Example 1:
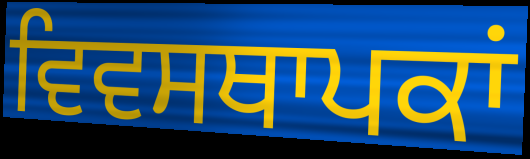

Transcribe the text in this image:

ਵਿਵਸਥਾਪਕਾਂ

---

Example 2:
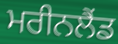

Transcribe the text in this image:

ਮਰੀਨਲੈਂਡ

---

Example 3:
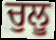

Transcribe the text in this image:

ਚੁਲੂ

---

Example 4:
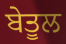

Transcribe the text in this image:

ਬੇਤੂਲ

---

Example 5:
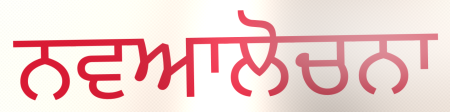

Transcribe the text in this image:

ਨਵਆਲੋਚਨਾ